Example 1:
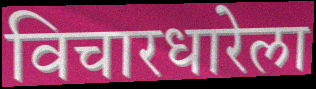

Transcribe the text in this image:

विचारधारेला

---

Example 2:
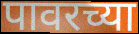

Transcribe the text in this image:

पावरच्या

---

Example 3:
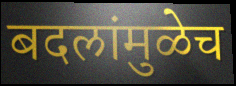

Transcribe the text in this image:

बदलांमुळेच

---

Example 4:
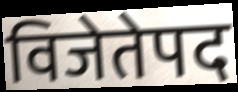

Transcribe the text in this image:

विजेतेपद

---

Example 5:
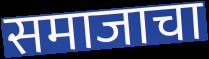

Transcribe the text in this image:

समाजाचा